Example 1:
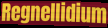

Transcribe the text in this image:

Regnellidium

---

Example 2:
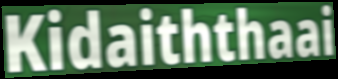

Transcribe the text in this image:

Kidaiththaai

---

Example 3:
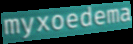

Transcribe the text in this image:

myxoedema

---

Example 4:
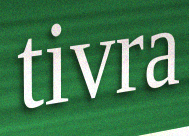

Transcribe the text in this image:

tivra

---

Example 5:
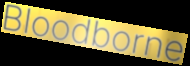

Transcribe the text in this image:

Bloodborne